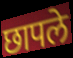
छापले